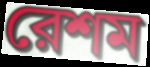
রেশম